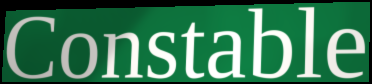
Constable